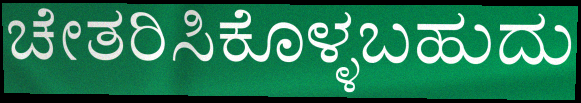
ಚೇತರಿಸಿಕೊಳ್ಳಬಹುದು